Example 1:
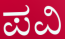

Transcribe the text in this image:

ಪವಿ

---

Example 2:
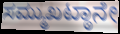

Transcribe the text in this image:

ಸಮ್ಮುಖಟ್ಠಾನೇ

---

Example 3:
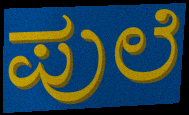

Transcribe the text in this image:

ಪುಲೆ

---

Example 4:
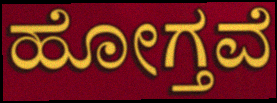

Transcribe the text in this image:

ಹೋಗ್ತವೆ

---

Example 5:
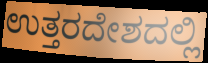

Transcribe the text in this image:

ಉತ್ತರದೇಶದಲ್ಲಿ